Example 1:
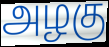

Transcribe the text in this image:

அழகு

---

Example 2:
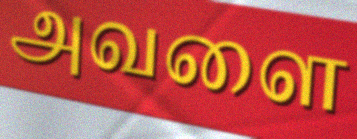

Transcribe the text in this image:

அவளை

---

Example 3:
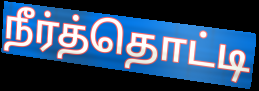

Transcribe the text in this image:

நீர்த்தொட்டி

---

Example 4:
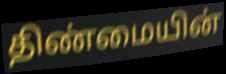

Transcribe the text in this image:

திண்மையின்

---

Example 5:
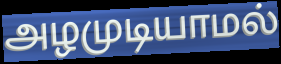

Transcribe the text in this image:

அழமுடியாமல்